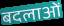
बदलाओं